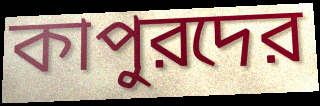
কাপুরদের